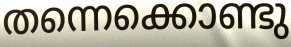
തന്നെക്കൊണ്ടു